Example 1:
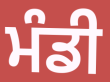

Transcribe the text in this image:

ਮੰਡੀ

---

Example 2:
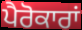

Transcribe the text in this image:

ਪੈਰੋਕਾਰਾਂ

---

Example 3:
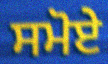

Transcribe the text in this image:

ਸਮੋਏ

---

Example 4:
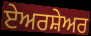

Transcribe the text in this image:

ਏਅਰਸ਼ੇਅਰ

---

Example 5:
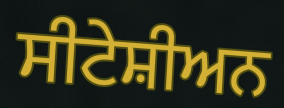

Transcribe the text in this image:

ਸੀਟੇਸ਼ੀਅਨ